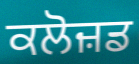
ਕਲੋਜ਼ਡ